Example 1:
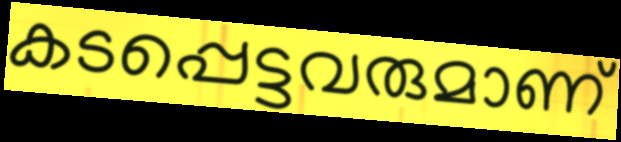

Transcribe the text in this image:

കടപ്പെട്ടവരുമാണ്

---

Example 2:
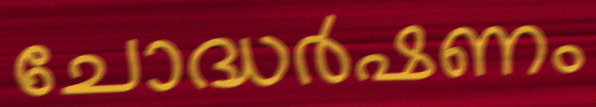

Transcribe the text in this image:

ചോദ്ധർഷണം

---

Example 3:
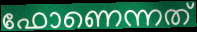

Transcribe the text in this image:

ഫോണെന്നത്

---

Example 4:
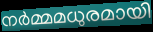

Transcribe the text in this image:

നർമ്മമധുരമായി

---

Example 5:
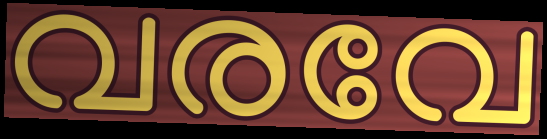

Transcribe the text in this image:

വരവേ